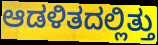
ಆಡಳಿತದಲ್ಲಿತ್ತು